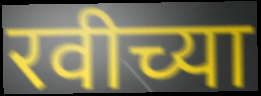
रवीच्या